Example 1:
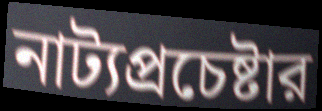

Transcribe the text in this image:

নাট্যপ্রচেষ্টার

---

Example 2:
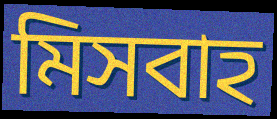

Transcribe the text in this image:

মিসবাহ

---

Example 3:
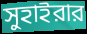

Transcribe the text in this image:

সুহাইরার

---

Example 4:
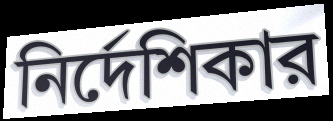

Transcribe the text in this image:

নির্দেশিকার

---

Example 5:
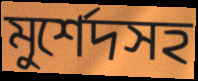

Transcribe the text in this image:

মুর্শেদসহ